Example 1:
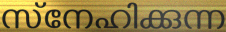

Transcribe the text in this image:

സ്‌നേഹിക്കുന്ന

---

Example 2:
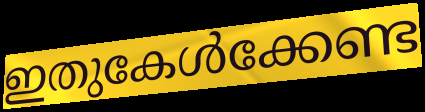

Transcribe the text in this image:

ഇതുകേൾക്കേണ്ട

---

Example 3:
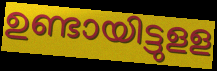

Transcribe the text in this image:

ഉണ്ടായിട്ടുളള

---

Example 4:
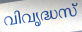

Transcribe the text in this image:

വിവൃദ്ധസ്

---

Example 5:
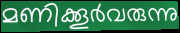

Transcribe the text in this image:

മണിക്കൂർവരുന്നു